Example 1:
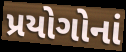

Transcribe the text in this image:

પ્રયોગોનાં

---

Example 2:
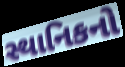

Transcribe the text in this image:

સ્થાનિકનો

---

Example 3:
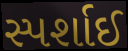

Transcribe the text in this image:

સ્પર્શાઈ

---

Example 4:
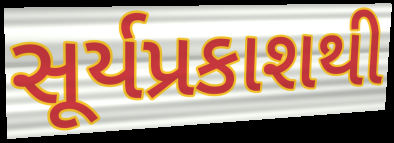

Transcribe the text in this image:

સૂર્યપ્રકાશથી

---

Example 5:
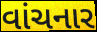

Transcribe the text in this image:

વાંચનાર